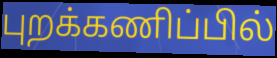
புறக்கணிப்பில்